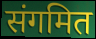
संगमित